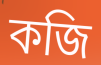
কজি